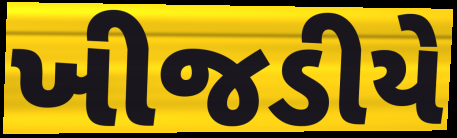
ખીજડીયે